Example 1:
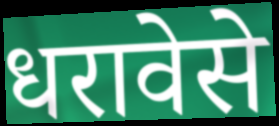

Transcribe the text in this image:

धरावेसे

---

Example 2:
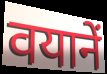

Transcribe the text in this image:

वयानें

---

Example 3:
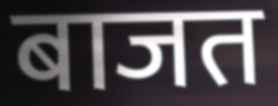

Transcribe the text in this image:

बाजत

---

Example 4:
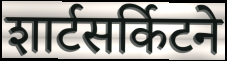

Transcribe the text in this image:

शार्टसर्किटने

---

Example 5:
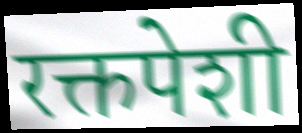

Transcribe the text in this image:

रक्तपेशी